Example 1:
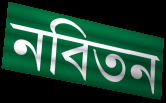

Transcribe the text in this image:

নবিতন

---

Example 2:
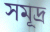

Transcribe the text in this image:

সমূদ্র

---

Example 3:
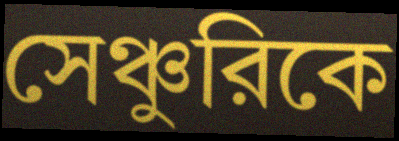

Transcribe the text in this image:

সেঞ্চুরিকে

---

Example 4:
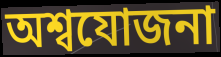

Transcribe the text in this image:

অশ্বযোজনা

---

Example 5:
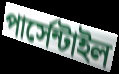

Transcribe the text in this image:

পার্সেন্টাইল